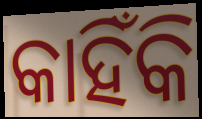
କାହିଁକି